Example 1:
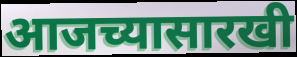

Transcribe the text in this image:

आजच्यासारखी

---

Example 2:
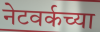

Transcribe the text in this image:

नेटवर्कच्या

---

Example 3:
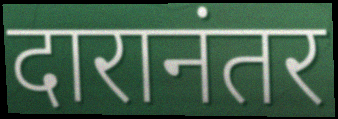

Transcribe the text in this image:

दारानंतर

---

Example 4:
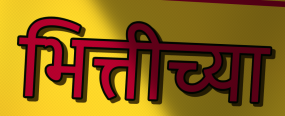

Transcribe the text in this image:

भित्तीच्या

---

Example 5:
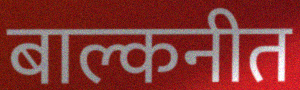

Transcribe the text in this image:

बाल्कनीत